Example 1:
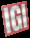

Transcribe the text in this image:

IGI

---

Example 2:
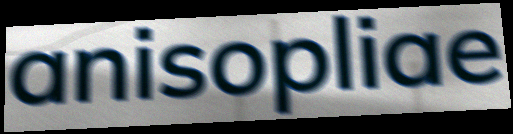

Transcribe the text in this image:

anisopliae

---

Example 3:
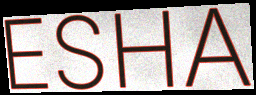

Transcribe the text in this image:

ESHA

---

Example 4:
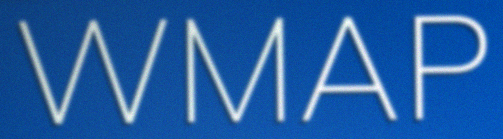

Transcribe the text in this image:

WMAP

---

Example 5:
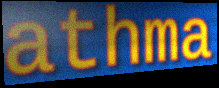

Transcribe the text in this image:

athma